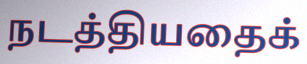
நடத்தியதைக்